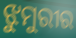
ଝୁମୁରୀର